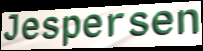
Jespersen